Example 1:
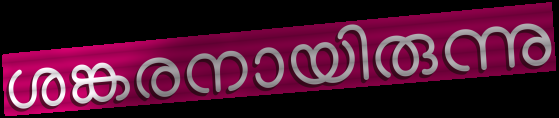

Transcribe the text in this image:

ശങ്കരനായിരുന്നു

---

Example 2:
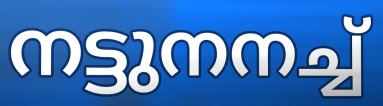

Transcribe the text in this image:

നട്ടുനനച്ച്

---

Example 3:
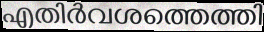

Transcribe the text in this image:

എതിർവശത്തെത്തി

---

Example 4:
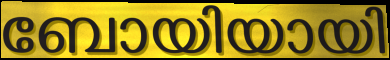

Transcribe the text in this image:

ബോയിയായി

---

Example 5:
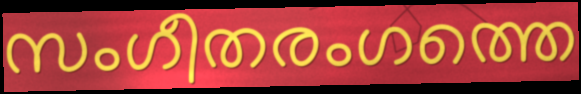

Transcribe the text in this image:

സംഗീതരംഗത്തെ